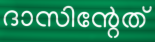
ദാസിന്റേത്